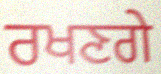
ਰਖਣਗੇ